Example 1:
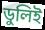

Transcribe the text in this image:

ডুলিই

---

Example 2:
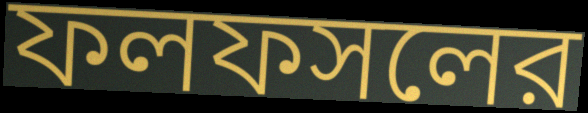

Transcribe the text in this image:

ফলফসলের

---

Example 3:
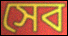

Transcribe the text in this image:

সেব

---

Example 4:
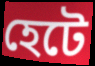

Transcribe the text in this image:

হেটে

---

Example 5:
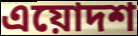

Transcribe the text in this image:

এয়োদশ